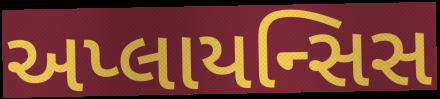
અપ્લાયન્સિસ